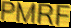
PMRF